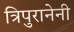
त्रिपुरानेनी